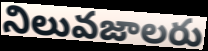
నిలువజాలరు